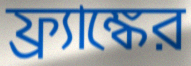
ফ্র্যাঙ্কের